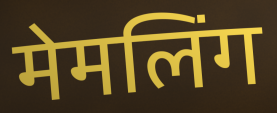
मेमलिंग